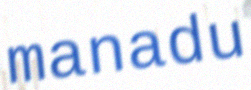
manadu